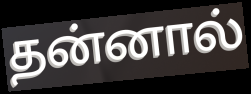
தன்னால்